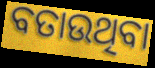
ବତାଉଥିବା